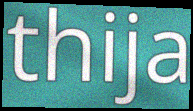
thija